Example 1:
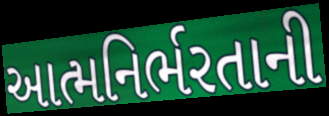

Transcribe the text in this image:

આત્મનિર્ભરતાની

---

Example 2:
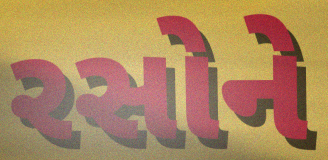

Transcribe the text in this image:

રસોને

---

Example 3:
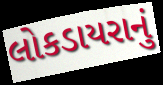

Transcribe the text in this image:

લોકડાયરાનું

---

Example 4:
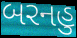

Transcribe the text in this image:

બરનહુ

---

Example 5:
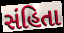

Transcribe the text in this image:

સંહિતા